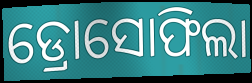
ଡ୍ରୋସୋଫିଲା